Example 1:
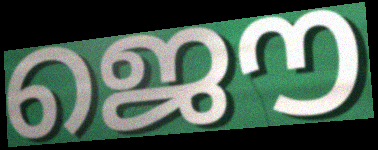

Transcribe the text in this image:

ജൌ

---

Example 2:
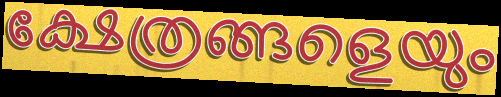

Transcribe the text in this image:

ക്ഷേത്രങ്ങളെയും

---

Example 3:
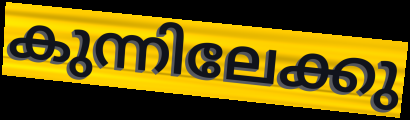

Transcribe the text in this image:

കുന്നിലേക്കു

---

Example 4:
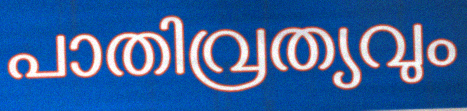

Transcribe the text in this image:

പാതിവ്രത്യവും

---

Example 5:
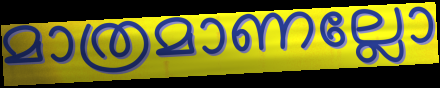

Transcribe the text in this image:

മാത്രമാണല്ലോ